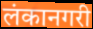
लंकानगरी